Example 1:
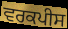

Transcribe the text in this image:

ਵਰਕਪੀਸ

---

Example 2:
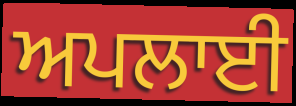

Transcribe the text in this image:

ਅਪਲਾਈ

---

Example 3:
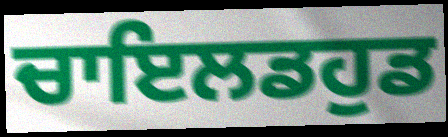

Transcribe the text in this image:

ਚਾਇਲਡਹੁਡ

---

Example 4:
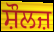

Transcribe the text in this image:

ਸ਼ੌਲਜ਼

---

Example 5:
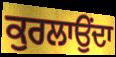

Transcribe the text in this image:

ਕੁਰਲਾਉਂਦਾ